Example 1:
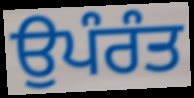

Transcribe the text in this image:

ਉਪੰਰੰਤ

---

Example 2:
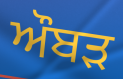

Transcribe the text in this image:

ਔਬੜ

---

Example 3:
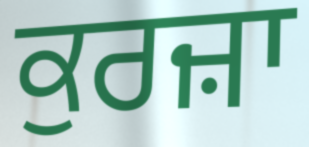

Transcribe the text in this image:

ਕੁਰਜ਼ਾ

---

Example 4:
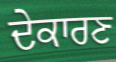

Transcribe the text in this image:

ਦੇਕਾਰਣ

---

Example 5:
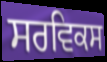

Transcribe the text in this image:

ਸਰਵਿਕਸ